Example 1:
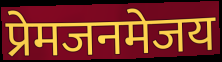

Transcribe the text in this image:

प्रेमजनमेजय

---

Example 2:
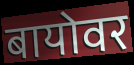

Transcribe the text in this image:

बायोवर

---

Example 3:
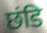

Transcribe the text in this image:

छंडि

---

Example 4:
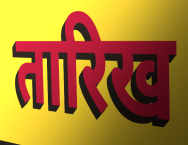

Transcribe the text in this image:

तारिख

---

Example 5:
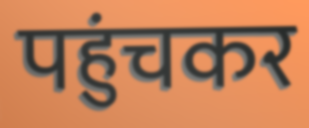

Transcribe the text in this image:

पहुंचकर